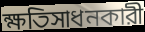
ক্ষতিসাধনকারী